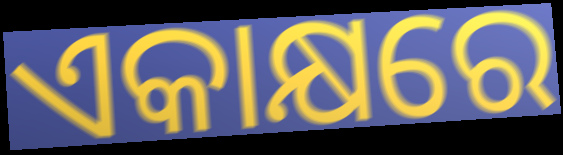
ଏକାକ୍ଷରେ